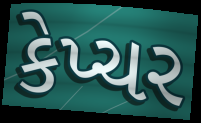
કેપ્ચર